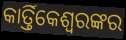
କାର୍ତ୍ତିକେଶ୍ୱରଙ୍କର